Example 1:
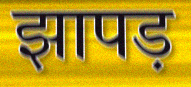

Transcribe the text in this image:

झापड़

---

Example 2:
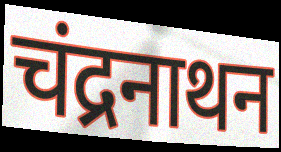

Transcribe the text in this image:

चंद्रनाथन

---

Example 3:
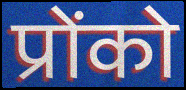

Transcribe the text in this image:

प्रोंको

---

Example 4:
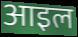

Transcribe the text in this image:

आइल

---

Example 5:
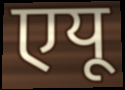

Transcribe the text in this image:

एयू